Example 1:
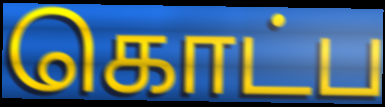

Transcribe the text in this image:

கொட்ப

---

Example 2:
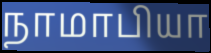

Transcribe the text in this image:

நாமாபியா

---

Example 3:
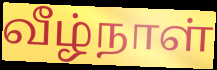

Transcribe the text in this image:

வீழ்நாள்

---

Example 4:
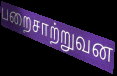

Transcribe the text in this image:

பறைசாற்றுவன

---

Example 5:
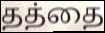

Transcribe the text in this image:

தத்தை